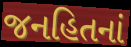
જનહિતનાં